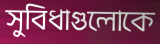
সুবিধাগুলোকে